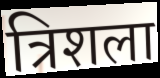
त्रिशला